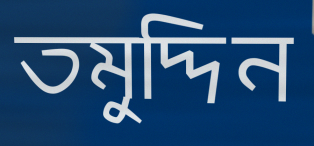
তমুদ্দিন